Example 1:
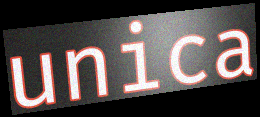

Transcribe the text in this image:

unica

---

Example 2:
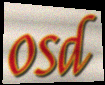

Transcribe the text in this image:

osd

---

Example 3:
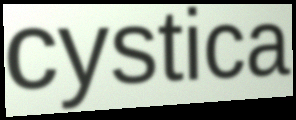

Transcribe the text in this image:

cystica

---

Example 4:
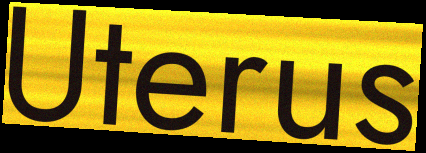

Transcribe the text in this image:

Uterus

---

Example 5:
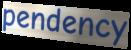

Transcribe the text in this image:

pendency